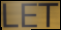
LET